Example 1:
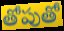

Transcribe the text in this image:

తోపుతో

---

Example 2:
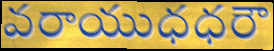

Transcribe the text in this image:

వరాయుధధరౌ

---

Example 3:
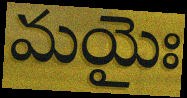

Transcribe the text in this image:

మయైః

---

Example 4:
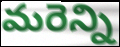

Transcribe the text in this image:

మరెన్ని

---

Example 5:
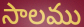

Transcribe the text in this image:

సాలము